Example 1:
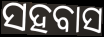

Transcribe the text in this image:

ସହବାସ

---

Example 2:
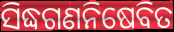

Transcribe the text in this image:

ସିଦ୍ଧଗଣନିଷେବିତ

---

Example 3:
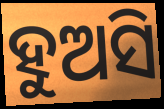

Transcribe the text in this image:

ହୁଅସି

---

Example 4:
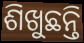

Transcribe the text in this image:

ଶିଖୁଛନ୍ତି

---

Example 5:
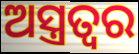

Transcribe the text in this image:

ଅସ୍ତ୍ରତ୍ୱର